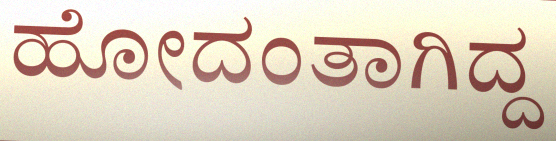
ಹೋದಂತಾಗಿದ್ದ